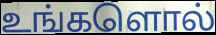
உங்களொல்